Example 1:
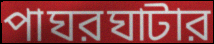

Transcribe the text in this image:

পাঘরঘাটার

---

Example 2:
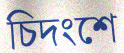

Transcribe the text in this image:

চিদংশে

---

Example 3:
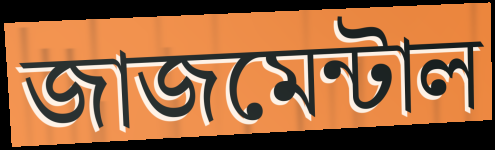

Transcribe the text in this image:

জাজমেন্টাল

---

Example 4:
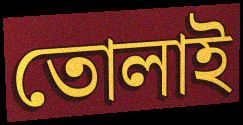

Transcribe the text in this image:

তোলাই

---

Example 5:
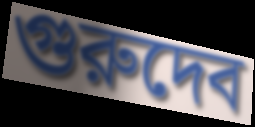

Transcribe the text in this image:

গুরুদেব